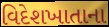
વિદેશખાતાના